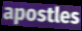
apostles